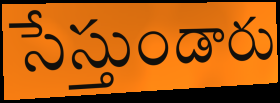
సేస్తుండారు